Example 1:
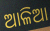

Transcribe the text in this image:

ଆଳିଆ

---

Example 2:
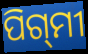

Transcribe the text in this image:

ପିଗ୍‌ମୀ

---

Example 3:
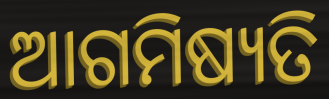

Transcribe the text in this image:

ଆଗମିଷ୍ୟତି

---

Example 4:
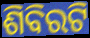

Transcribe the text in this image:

ଶିବିରଟି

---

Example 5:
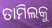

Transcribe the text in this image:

ତାମିଲକୁ